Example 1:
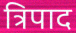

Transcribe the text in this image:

त्रिपाद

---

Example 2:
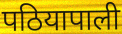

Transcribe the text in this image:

पठियापाली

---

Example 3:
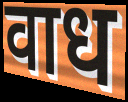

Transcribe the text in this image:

वाध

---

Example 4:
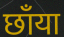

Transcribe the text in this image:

छाँया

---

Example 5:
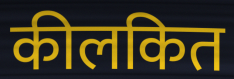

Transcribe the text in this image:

कीलकित